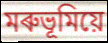
মৰুভূমিয়ে